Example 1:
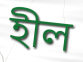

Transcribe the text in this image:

হীল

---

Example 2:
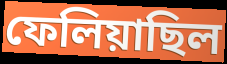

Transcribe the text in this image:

ফেলিয়াছিল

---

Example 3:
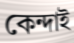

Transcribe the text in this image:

কেন্দাই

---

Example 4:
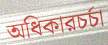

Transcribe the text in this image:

অধিকারচর্চা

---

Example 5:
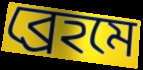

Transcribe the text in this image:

ব্রেহমে